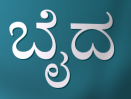
ಬೈದ